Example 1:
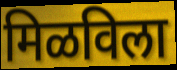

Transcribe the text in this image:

मिळविला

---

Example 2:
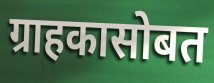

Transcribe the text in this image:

ग्राहकासोबत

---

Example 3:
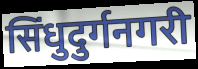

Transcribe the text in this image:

सिंधुदुर्गनगरी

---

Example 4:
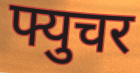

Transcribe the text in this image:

फ्युचर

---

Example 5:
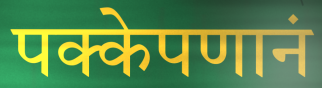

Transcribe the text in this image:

पक्केपणानं